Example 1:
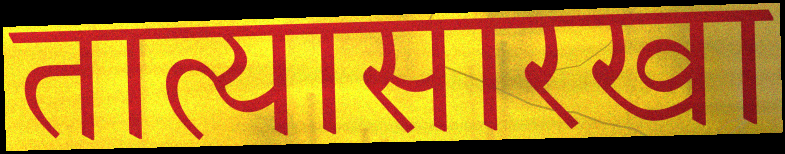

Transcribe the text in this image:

तात्यासारखा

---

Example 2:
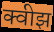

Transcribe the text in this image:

क्वीझ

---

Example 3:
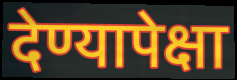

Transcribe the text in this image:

देण्यापेक्षा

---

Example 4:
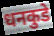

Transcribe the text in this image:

धनकुडे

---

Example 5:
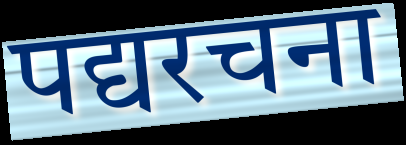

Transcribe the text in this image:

पद्यरचना